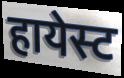
हायेस्ट